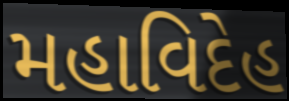
મહાવિદેહ